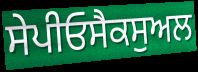
ਸੇਪੀਓਸੈਕਸੁਅਲ